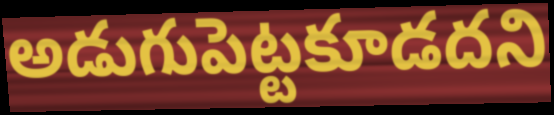
అడుగుపెట్టకూడదని